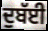
ਦੁਬੱਈ